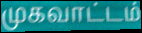
முகவாட்டம்